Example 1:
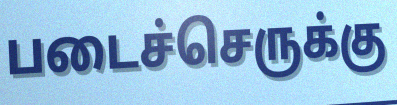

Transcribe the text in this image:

படைச்செருக்கு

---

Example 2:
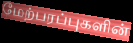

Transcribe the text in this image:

மேற்பரப்புகளின்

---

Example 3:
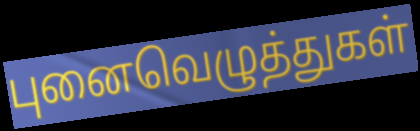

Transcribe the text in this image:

புனைவெழுத்துகள்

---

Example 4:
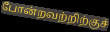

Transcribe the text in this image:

போன்றவற்றிற்குச்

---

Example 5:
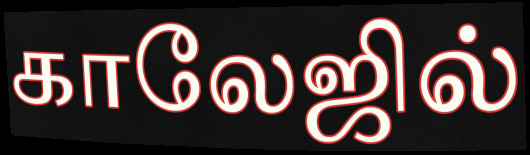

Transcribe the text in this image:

காலேஜில்